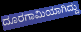
ದೂರಗಾಮಿಯಾಗಿದ್ದು